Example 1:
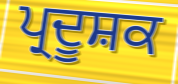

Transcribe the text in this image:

ਪ੍ਰਦੂਸ਼ਕ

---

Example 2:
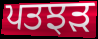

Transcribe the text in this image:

ਪਤਝੜ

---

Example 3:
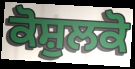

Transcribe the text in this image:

ਕੋਸ਼ੁਲਕੋ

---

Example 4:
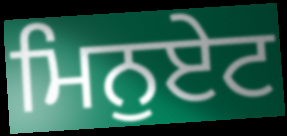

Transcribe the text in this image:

ਮਿਨੁਏਟ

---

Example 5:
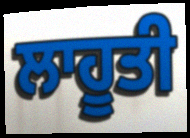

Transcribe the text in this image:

ਲਾਹੂਤੀ